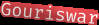
Gouriswar